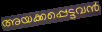
അയക്കപ്പെട്ടവൻ